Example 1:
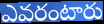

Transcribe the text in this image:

ఎవరంటారు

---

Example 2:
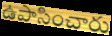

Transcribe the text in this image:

ఉపాసించారు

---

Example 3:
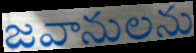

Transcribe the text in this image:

జవానులను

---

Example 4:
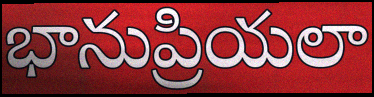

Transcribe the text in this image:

భానుప్రియలా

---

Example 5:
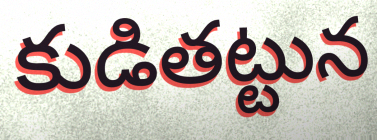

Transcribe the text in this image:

కుడితట్టున